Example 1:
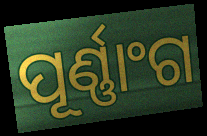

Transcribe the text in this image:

ପୂର୍ଣ୍ଣାଂଗ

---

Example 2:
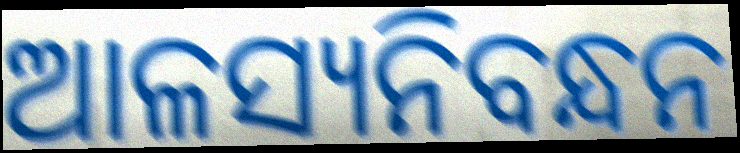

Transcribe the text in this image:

ଆଳସ୍ୟନିବନ୍ଧନ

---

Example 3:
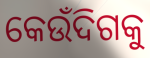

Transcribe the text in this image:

କେଉଁଦିଗକୁ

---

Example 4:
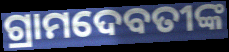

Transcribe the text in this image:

ଗ୍ରାମଦେବତୀଙ୍କ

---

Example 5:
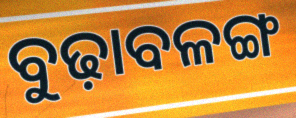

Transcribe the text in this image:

ବୁଢ଼ାବଳଙ୍ଗ